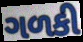
ગળકી